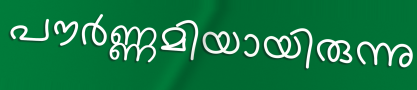
പൗർണ്ണമിയായിരുന്നു